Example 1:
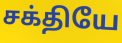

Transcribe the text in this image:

சக்தியே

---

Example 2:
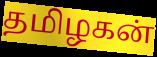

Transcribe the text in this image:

தமிழகன்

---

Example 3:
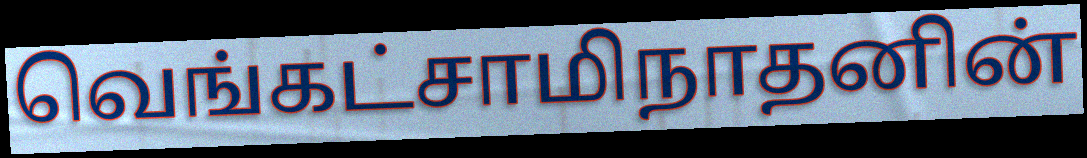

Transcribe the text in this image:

வெங்கட்சாமிநாதனின்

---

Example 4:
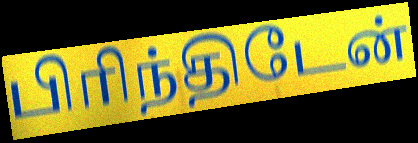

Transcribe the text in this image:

பிரிந்திடேன்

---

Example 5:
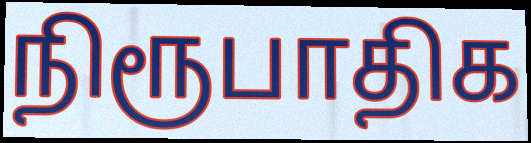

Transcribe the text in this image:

நிரூபாதிக